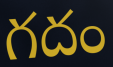
గదం